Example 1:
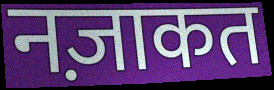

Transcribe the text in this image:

नज़ाकत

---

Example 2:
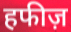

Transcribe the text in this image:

हफीज़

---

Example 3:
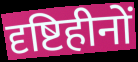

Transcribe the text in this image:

दृष्टिहीनों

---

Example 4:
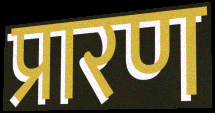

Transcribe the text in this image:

प्रारण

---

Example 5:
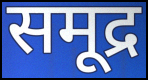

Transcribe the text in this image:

समूद्र